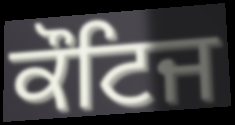
ਕੌਟਿਜ